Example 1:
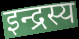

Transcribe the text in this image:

इन्द्रस्य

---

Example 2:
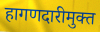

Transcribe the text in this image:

हागणदारीमुक्त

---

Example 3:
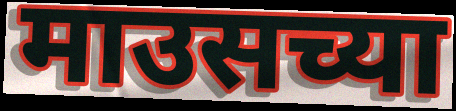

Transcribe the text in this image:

माउसच्या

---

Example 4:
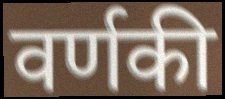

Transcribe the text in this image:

वर्णकी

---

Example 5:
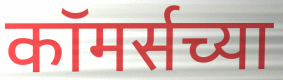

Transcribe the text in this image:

कॉमर्सच्या